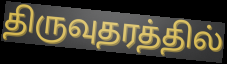
திருவுதரத்தில்